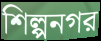
শিল্পনগর